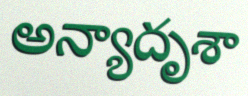
అన్యాదృశా